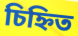
চিহ্নিত